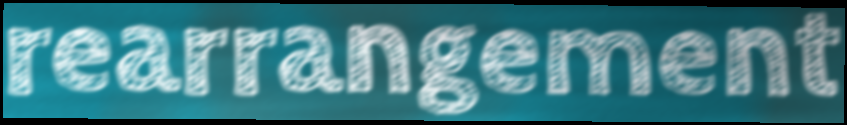
rearrangement